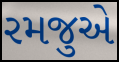
રમજુએ